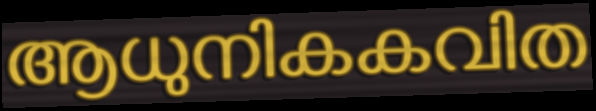
ആധുനികകവിത